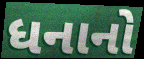
ધનાનો